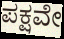
ಪಕ್ಷವೇ